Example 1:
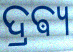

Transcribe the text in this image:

ଦ୍ରଵ୍ୟ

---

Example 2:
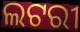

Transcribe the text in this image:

ଲଟରୀ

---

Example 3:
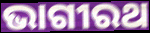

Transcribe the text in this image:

ଭାଗୀରଥ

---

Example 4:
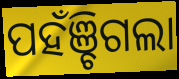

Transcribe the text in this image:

ପହଁଞ୍ଚିଗଲା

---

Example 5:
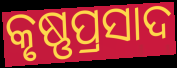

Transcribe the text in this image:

କୃଷ୍ଣପ୍ରସାଦ